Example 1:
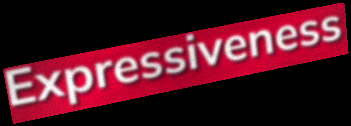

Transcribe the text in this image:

Expressiveness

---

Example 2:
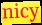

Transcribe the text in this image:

nicy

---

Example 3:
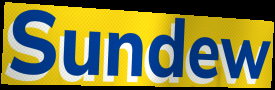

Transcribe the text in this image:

Sundew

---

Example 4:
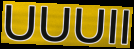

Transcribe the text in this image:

UUUII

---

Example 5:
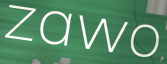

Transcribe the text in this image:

zawo